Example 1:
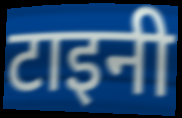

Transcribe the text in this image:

टाइनी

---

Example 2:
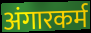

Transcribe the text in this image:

अंगारकर्म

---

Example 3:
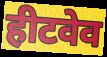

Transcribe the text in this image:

हीटवेव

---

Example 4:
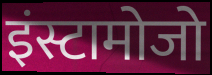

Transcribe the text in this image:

इंस्टामोजो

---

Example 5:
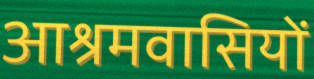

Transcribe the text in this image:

आश्रमवासियों